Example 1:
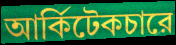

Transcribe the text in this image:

আর্কিটেকচারে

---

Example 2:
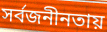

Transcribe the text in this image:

সর্বজনীনতায়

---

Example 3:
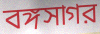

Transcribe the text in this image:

বঙ্গসাগর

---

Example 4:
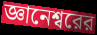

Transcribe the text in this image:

জ্ঞানেশ্বরের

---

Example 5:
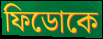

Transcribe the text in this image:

ফিডোকে